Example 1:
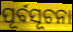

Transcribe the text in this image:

ପୂର୍ବସୂଚନା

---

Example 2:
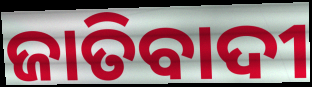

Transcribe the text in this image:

ଜାତିବାଦୀ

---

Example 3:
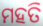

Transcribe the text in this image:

ମହତି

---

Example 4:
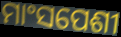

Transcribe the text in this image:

ମାଂସପେଶୀ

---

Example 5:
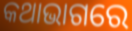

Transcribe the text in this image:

କଥାଭାଗରେ